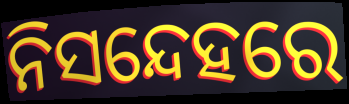
ନିସନ୍ଦେହରେ